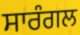
ਸਾਰੰਗਲ